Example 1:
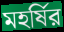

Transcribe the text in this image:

মহর্ষির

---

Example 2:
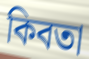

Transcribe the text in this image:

কিবতা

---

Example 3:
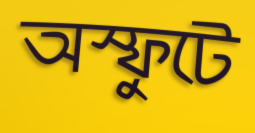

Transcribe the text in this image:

অস্ফুটে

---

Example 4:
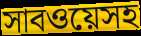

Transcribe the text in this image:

সাবওয়েসহ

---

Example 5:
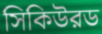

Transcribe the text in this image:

সিকিউরড